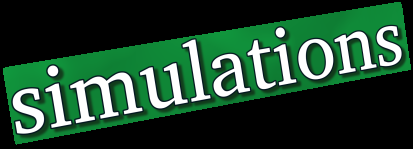
simulations